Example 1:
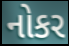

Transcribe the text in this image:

નોકર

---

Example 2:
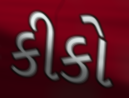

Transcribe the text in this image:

કીકો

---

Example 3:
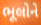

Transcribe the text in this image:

ભૂલોને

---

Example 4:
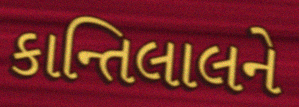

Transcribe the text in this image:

કાન્તિલાલને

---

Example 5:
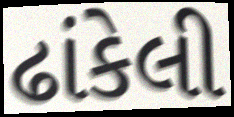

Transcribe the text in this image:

ઢાંકેલી